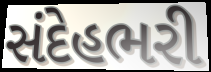
સંદેહભરી